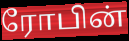
ரோபின்